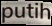
putih